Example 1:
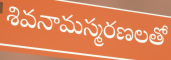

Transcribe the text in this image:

శివనామస్మరణలతో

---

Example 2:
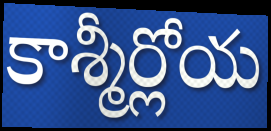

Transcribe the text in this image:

కాశ్మీర్లోయ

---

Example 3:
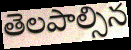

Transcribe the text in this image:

తెలపాల్సిన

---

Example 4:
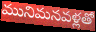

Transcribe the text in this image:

మునిమనవళ్లతో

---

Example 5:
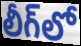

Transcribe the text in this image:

లీగ్‌లో